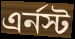
এর্নস্ট